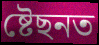
ষ্টেছনত